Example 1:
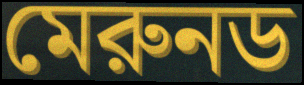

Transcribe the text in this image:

মেরুনড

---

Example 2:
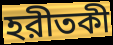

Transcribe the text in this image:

হরীতকী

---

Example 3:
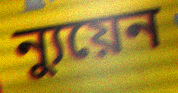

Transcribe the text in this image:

ন্যুয়েন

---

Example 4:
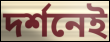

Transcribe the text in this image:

দর্শনেই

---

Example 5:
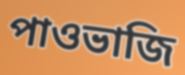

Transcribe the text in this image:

পাওভাজি